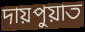
দায়পুয়াত